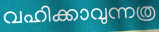
വഹിക്കാവുന്നത്ര